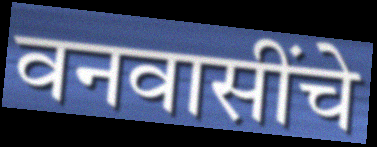
वनवासींचे